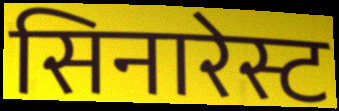
सिनारेस्ट